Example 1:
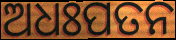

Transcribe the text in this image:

ଅଧଃପତନ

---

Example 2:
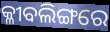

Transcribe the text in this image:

କ୍ଳୀବଲିଙ୍ଗରେ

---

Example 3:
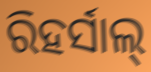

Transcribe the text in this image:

ରିହର୍ସାଲ୍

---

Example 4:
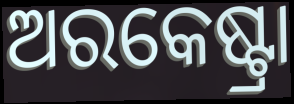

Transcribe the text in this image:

ଅରକେଷ୍ଟ୍ରା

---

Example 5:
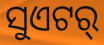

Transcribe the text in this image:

ସୁଏଟର୍